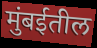
मुंबईतील